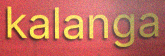
kalanga